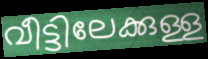
വീട്ടിലേക്കുള്ള